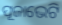
ପୂଜାଭେଟି